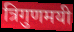
त्रिगुणमयी